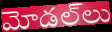
మోడల్‌లు